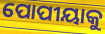
ପୋପୀୟାକୁ